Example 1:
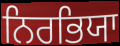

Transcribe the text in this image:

ਨਿਰਭਿਯਾ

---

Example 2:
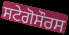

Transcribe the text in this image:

ਸਟੇਗੋਸੌਰਸ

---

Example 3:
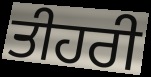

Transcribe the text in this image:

ਤੀਹਰੀ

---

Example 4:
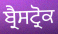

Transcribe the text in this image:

ਬ੍ਰੈਸਟ੍ਰੋਕ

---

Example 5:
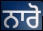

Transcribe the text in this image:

ਨਾਰੋ